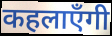
कहलाएँगी